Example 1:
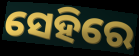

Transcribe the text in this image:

ସେହିରେ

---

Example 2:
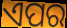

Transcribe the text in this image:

ଏପର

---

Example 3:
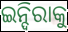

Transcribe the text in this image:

ଇନ୍ଦିରାକୁ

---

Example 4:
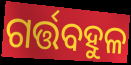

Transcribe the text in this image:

ଗର୍ତ୍ତବହୁଳ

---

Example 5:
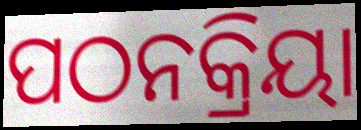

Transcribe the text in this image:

ପଠନକ୍ରିୟା